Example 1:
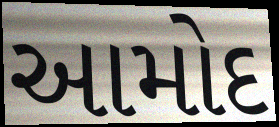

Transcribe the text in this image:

આમોદ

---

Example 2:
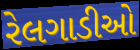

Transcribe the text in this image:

રેલગાડીઓ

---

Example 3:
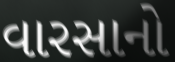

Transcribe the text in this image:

વારસાનો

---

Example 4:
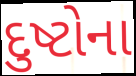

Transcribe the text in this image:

દુષ્ટોના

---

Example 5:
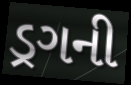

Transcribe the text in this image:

ડ્રગની